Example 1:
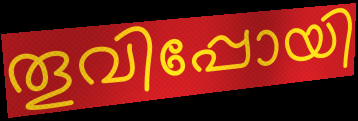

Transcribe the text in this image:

തൂവിപ്പോയി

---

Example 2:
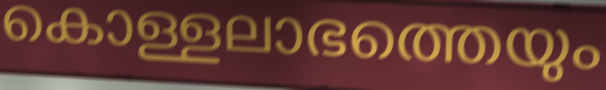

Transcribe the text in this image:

കൊള്ളലാഭത്തെയും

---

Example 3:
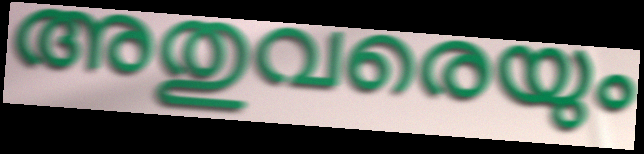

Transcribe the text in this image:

അതുവരെയും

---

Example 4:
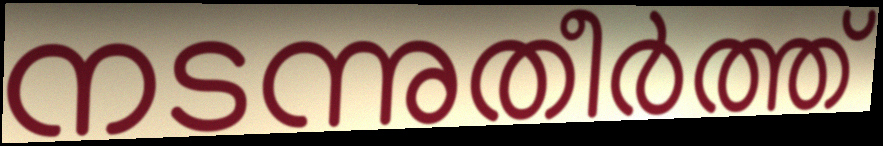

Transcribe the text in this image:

നടന്നുതീർത്ത്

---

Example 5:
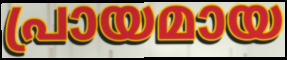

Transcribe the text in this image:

പ്രായമായ